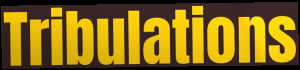
Tribulations